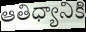
ఆతిధ్యానికి